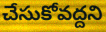
చేసుకోవద్దని